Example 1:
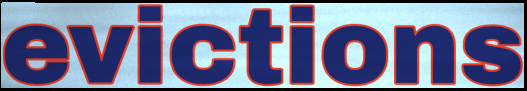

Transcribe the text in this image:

evictions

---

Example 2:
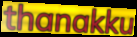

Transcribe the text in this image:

thanakku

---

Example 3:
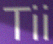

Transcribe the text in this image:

Tii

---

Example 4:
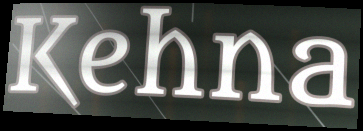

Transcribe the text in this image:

Kehna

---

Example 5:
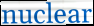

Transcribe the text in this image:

nuclear